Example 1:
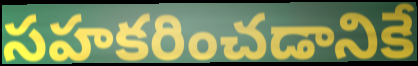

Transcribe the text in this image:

సహకరించడానికే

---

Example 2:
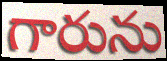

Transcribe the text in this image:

గారును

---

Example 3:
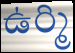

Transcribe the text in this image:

ఉర్మి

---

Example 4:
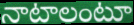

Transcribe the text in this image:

నాటాలంటూ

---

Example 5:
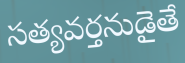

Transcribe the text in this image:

సత్యవర్తనుడైతే